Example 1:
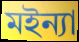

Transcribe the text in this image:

মইন্যা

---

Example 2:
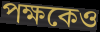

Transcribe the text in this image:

পক্ষকেও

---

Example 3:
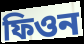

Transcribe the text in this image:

ফিওন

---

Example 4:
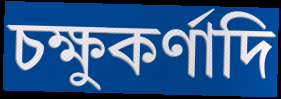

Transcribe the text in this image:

চক্ষুকর্ণাদি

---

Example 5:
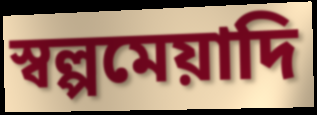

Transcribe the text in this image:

স্বল্পমেয়াদি